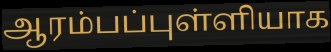
ஆரம்பப்புள்ளியாக